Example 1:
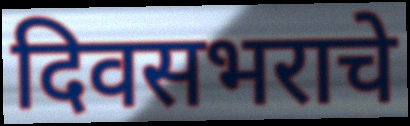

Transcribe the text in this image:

दिवसभराचे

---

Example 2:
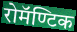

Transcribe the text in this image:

रोमॅण्टिक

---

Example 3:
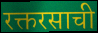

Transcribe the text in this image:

रक्तरसाची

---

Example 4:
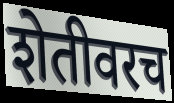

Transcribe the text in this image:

शेतीवरच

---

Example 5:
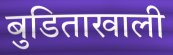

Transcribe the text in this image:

बुडिताखाली